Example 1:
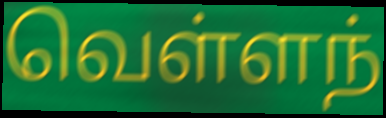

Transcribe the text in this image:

வெள்ளந்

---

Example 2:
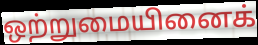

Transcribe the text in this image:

ஒற்றுமையினைக்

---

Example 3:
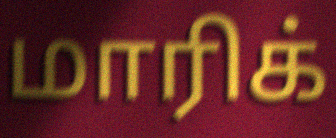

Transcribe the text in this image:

மாரிக்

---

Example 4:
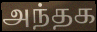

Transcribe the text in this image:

அந்தக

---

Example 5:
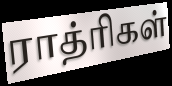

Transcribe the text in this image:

ராத்ரிகள்